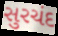
સુરચંદ